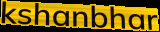
kshanbhar